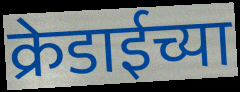
क्रेडाईच्या